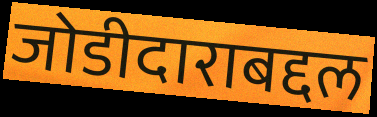
जोडीदाराबद्दल